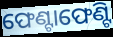
ଫେଣ୍ଟାଫେଣ୍ଟି